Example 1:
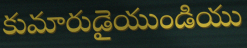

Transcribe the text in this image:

కుమారుడైయుండియు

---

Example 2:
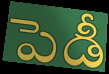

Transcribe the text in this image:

పెడీ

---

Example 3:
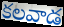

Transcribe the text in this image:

కలవాడ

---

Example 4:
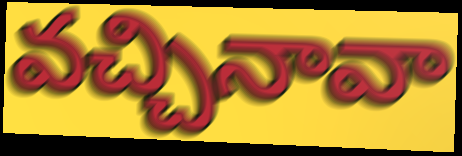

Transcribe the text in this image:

వచ్చినావా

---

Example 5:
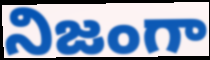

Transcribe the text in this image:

నిజంగా